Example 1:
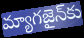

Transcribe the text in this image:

మ్యాగజైన్‌కు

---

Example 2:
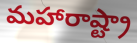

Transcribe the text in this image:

మహారాష్ట్రా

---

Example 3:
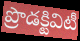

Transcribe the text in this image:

ప్రొడక్టివిటీ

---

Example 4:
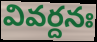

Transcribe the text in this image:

వివర్దనః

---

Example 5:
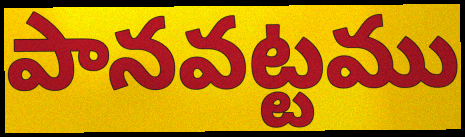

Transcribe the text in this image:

పానవట్టము